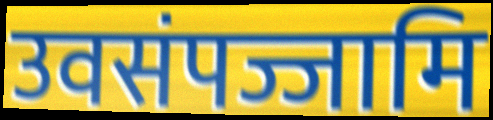
उवसंपज्जामि